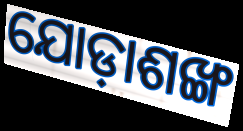
ଯୋଡ଼ାଶଙ୍ଖ